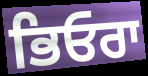
ਭਿਓਰਾ